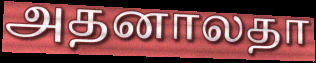
அதனாலதா